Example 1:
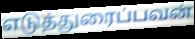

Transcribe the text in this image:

எடுத்துரைப்பவன்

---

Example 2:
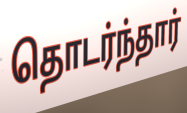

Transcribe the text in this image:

தொடர்ந்தார்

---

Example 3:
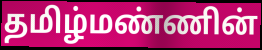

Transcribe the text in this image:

தமிழ்மண்ணின்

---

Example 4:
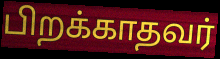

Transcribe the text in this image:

பிறக்காதவர்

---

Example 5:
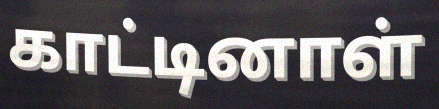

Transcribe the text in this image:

காட்டினாள்